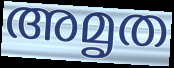
അമൃത